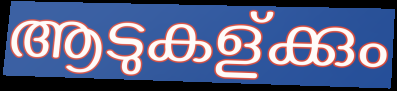
ആടുകള്ക്കും